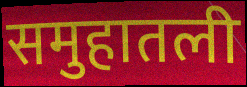
समुहातली